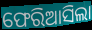
ଫେରିଆସିଲା